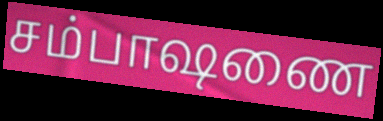
சம்பாஷணை